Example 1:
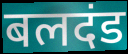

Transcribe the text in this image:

बलदंड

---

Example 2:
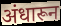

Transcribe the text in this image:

अंधारून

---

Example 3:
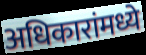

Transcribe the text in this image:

अधिकारांमध्ये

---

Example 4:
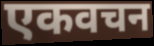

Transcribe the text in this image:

एकवचन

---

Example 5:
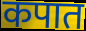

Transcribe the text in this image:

कपात